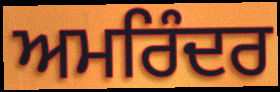
ਅਮਰਿੰਦਰ